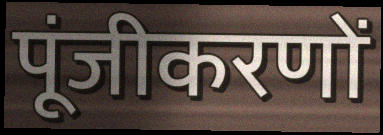
पूंजीकरणों